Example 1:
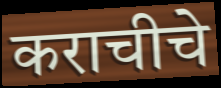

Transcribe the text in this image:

कराचीचे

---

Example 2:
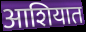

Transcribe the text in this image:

आशियात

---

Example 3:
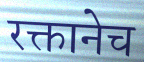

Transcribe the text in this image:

रक्तानेच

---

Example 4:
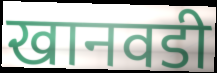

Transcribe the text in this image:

खानवडी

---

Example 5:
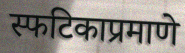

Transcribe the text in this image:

स्फटिकाप्रमाणे